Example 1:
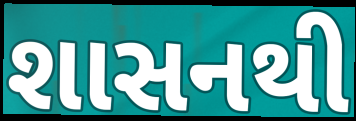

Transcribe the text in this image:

શાસનથી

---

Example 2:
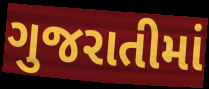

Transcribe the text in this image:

ગુજરાતીમાં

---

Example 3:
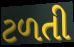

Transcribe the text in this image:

ટળતી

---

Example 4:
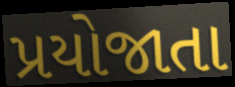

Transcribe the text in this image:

પ્રયોજાતા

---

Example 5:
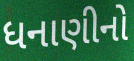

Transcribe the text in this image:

ધનાણીનો